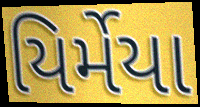
યિર્મેયા